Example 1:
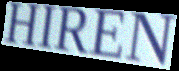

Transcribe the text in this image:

HIREN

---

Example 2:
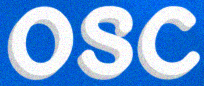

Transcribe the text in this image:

osc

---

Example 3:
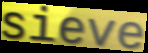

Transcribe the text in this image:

sieve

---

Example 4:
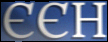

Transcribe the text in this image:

EEH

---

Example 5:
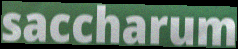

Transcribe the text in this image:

saccharum